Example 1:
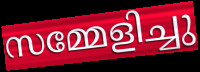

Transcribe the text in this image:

സമ്മേളിച്ചു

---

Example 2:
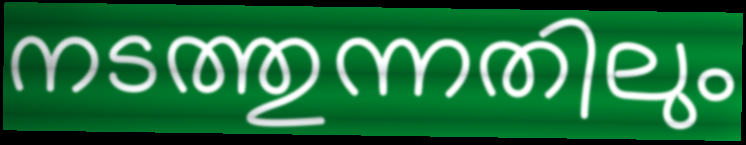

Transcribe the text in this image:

നടത്തുന്നതിലും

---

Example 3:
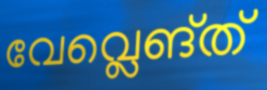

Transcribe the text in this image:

വേവ്ലെങ്ത്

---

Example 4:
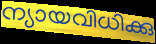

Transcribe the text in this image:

ന്യായവിധിക്കു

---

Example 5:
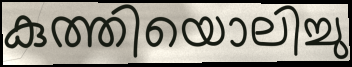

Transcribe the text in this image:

കുത്തിയൊലിച്ചു